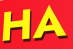
HA